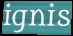
ignis